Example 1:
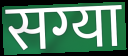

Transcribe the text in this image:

सग्या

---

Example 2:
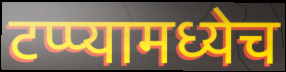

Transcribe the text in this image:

टप्प्यामध्येच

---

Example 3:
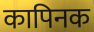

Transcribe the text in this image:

कापिनक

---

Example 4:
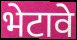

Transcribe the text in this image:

भेटावे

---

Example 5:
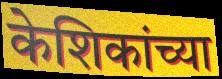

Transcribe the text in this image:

केशिकांच्या